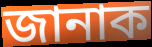
জানাক